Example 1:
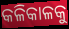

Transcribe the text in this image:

କଳିକାଳକୁ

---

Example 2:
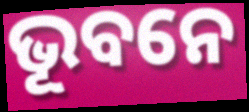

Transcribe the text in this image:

ଭୂବନେ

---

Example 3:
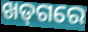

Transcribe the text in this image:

ଖଡ୍‌ଗରେ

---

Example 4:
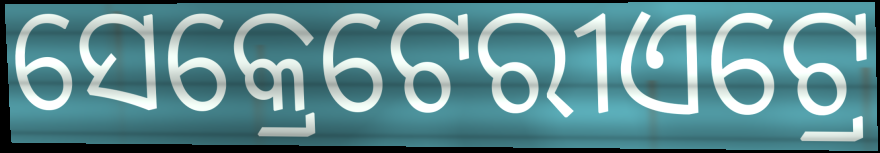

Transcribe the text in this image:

ସେକ୍ରେଟେରୀଏଟ୍ରେ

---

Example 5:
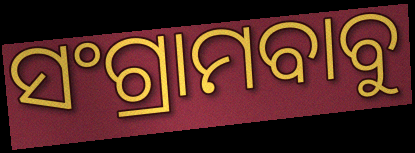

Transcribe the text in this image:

ସଂଗ୍ରାମବାବୁ